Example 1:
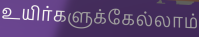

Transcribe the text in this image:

உயிர்களுக்கேல்லாம்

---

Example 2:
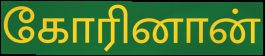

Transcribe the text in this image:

கோரினான்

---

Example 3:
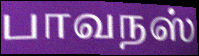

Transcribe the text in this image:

பாவநஸ்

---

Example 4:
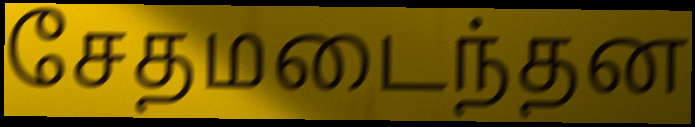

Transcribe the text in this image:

சேதமடைந்தன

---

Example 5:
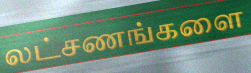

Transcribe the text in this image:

லட்சணங்களை